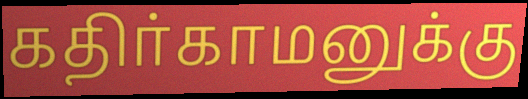
கதிர்காமனுக்கு